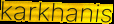
karkhanis